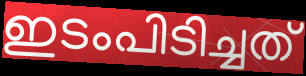
ഇടംപിടിച്ചത്